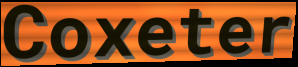
Coxeter